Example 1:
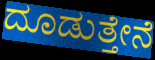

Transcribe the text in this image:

ದೂಡುತ್ತೇನೆ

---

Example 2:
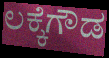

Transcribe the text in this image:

ಲಕ್ಕೆಗೌಡ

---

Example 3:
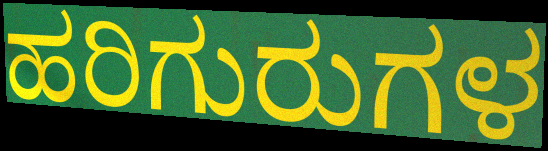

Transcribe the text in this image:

ಹರಿಗುರುಗಳ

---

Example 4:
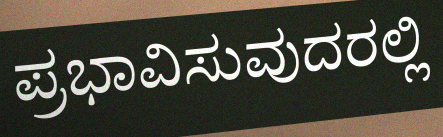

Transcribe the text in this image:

ಪ್ರಭಾವಿಸುವುದರಲ್ಲಿ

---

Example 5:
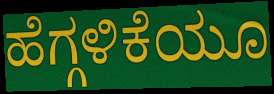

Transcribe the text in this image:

ಹೆಗ್ಗಳಿಕೆಯೂ